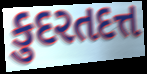
કુદરતદત્ત